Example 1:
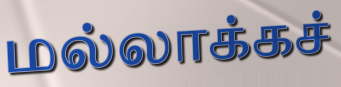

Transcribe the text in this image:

மல்லாக்கச்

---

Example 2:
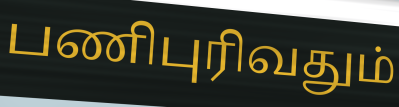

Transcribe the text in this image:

பணிபுரிவதும்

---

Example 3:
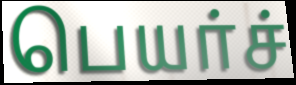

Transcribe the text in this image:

பெயர்ச்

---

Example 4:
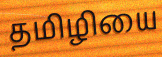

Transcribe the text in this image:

தமிழியை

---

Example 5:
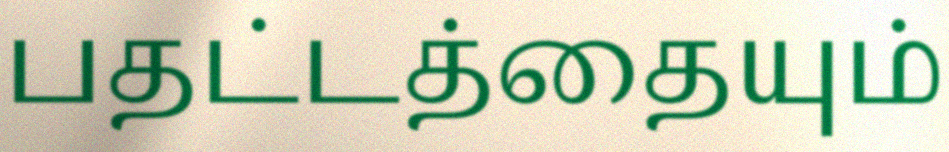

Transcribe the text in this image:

பதட்டத்தையும்